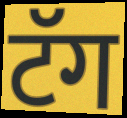
टॅग